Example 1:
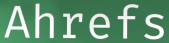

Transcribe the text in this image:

Ahrefs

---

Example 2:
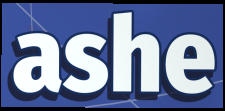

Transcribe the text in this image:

ashe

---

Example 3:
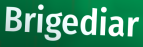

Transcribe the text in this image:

Brigediar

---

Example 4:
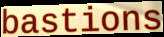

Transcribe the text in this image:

bastions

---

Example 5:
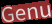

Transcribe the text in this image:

Genu